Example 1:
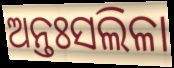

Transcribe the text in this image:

ଅନ୍ତଃସଲିଳା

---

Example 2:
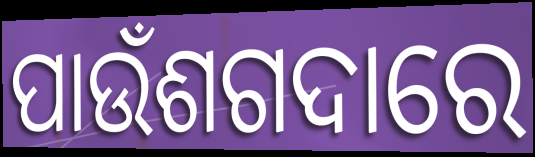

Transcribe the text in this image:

ପାଉଁଶଗଦାରେ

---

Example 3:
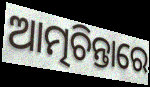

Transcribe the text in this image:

ଆତ୍ମଚିନ୍ତାରେ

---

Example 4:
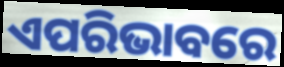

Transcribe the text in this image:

ଏପରିଭାବରେ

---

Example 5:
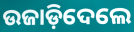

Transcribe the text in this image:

ଉଜାଡ଼ିଦେଲେ